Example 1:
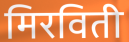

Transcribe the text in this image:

मिरविती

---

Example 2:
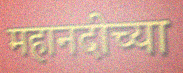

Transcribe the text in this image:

महानदीच्या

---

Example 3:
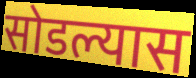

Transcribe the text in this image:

सोडल्यास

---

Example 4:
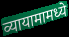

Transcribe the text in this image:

व्यायामामध्ये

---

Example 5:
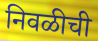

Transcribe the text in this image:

निवळीची